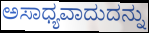
ಅಸಾಧ್ಯವಾದುದನ್ನು